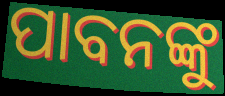
ପାବନଙ୍କୁ